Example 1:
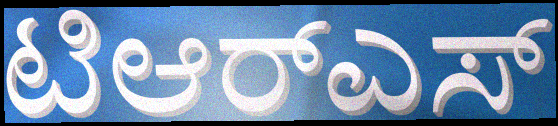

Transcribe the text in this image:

ಟಿಆರ್‌ಎಸ್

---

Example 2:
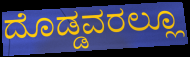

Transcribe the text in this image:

ದೊಡ್ಡವರಲ್ಲೂ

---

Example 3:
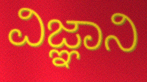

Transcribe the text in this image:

ವಿಜ್ಞಾನಿ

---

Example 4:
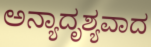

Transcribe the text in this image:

ಅನ್ಯಾದೃಶ್ಯವಾದ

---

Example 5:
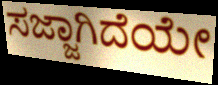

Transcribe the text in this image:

ಸಜ್ಜಾಗಿದೆಯೇ